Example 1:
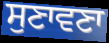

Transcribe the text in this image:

ਸੁਣਾਵਣਾ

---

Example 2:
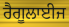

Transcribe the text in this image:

ਰੈਗੂਲਾਈਜ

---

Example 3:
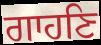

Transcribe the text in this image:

ਗਾਹਣਿ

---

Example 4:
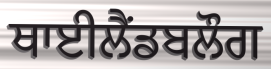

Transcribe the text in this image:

ਥਾਈਲੈਂਡਬਲੌਗ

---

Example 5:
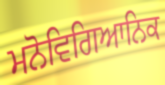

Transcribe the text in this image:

ਮਨੋਵਿਗਿਆਨਿਕ